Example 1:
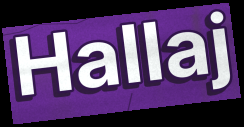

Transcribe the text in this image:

Hallaj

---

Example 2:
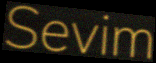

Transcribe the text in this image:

Sevim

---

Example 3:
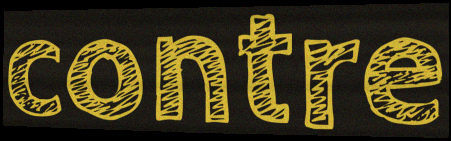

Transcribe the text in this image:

contre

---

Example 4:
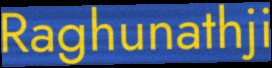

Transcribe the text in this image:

Raghunathji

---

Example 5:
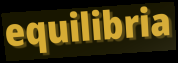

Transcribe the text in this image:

equilibria